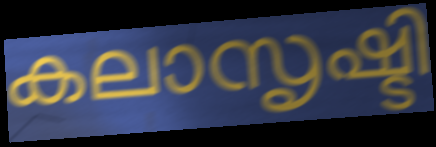
കലാസൃഷ്ടി